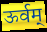
ऊर्वम्